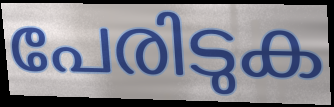
പേരിടുക